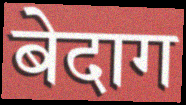
बेदाग